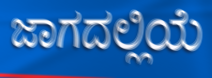
ಜಾಗದಲ್ಲಿಯೆ